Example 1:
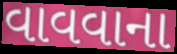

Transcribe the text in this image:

વાવવાના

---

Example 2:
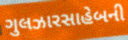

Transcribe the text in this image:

ગુલઝારસાહેબની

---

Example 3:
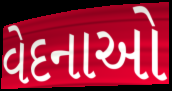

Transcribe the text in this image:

વેદનાઓ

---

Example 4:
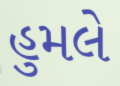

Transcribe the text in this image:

હુમલે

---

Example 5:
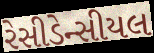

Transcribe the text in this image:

રેસીડેન્સીયલ